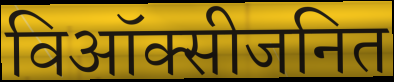
विऑक्सीजनित